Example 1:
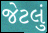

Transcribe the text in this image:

જેટલું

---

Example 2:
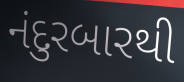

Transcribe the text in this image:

નંદુરબારથી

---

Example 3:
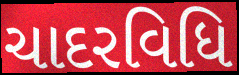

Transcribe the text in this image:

ચાદરવિધિ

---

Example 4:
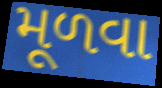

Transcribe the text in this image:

મૂળવા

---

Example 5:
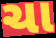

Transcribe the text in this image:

ચા